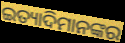
ଇତ୍ୟାଦିମାନଙ୍କର